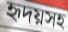
হৃদয়সহ